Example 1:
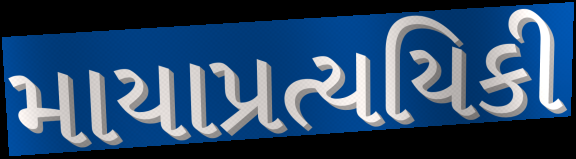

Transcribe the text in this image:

માયાપ્રત્યયિકી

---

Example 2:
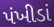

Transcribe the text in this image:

પંખીડાં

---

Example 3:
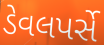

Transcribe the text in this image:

ડેવલપર્સે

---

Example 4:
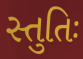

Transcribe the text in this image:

સ્તુતિઃ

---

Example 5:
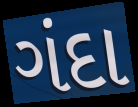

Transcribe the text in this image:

ગંદા